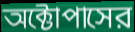
অক্টোপাসের